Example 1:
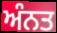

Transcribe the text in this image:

ਅੰਨਤ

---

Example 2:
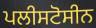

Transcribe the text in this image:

ਪਲੀਸਟੋਸੀਨ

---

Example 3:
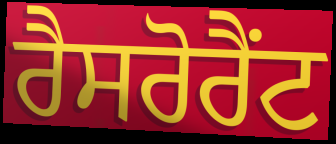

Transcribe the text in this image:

ਰੈਸਰੋਰੈਂਟ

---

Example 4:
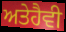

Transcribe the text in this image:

ਅਤੇਹੈਵੀ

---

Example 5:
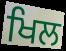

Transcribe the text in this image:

ਖਿਲ